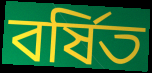
বর্ষিত